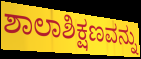
ಶಾಲಾಶಿಕ್ಷಣವನ್ನು